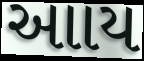
આાય